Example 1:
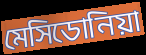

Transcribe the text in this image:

মেসিডোনিয়া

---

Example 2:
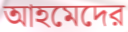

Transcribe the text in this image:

আহমেদের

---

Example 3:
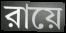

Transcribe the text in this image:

রায়ে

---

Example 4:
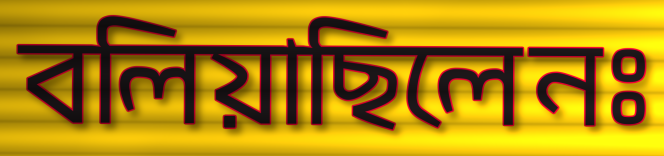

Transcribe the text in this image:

বলিয়াছিলেনঃ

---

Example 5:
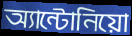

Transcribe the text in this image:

অ্যান্টোনিয়ো